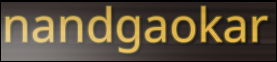
nandgaokar